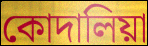
কোদালিয়া